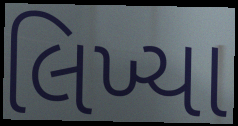
લિખ્યા